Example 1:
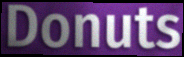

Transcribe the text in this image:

Donuts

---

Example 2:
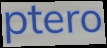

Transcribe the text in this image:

ptero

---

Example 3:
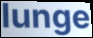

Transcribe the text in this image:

lunge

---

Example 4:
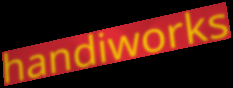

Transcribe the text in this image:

handiworks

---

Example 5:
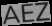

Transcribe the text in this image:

AEZ